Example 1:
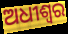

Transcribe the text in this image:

ଅଧୀଶ୍ୱର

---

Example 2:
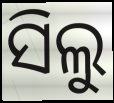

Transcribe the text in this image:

ସିଲୁ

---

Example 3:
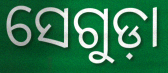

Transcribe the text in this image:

ସେଗୁଡ଼ା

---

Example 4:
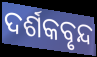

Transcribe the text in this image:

ଦର୍ଶକବୃନ୍ଦ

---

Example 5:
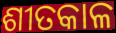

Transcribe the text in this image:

ଶୀତକାଳ